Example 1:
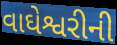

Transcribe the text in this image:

વાઘેશ્વરીની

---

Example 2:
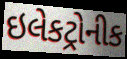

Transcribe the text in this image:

ઇલેકટ્રોનીક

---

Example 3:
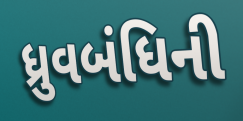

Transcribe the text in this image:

ધ્રુવબંધિની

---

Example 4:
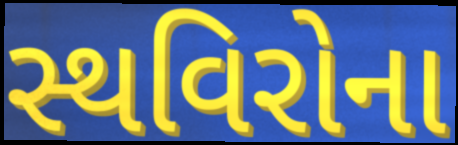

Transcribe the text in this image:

સ્થવિરોના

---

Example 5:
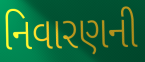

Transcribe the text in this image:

નિવારણની